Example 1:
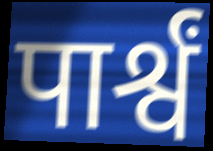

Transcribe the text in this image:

पार्श्वं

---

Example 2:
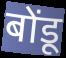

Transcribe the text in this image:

बोंडू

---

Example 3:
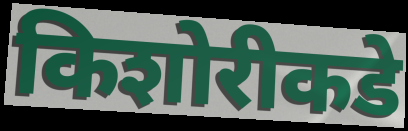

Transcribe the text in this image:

किशोरीकडे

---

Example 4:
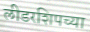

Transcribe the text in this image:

लीडरशिपच्या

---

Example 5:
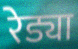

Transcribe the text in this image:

रेड्या